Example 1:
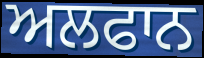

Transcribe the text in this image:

ਅਲਫਾਨ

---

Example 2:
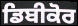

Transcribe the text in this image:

ਡਿਬੀਕੋਰ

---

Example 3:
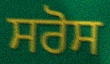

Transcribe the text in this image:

ਸਰੋਸ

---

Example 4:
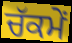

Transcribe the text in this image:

ਚੱਕਮੇਂ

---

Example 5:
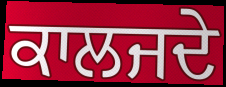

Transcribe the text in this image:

ਕਾਲਜਦੇ